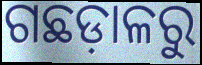
ଗଛଡ଼ାଳରୁ